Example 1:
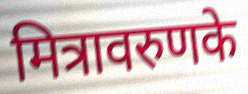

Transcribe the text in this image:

मित्रावरुणके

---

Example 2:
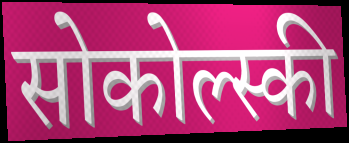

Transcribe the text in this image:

सोकोल्स्की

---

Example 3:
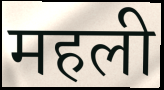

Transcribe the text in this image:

महली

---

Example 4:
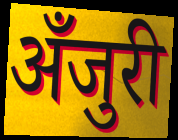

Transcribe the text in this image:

अँजुरी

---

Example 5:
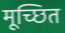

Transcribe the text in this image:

मूच्छित